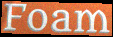
Foam